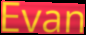
Evan